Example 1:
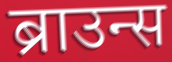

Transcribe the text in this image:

ब्राउन्स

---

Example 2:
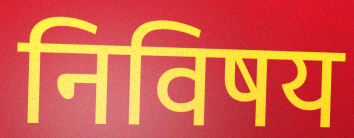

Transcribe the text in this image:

निविषय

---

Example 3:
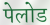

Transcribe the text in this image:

पेलोड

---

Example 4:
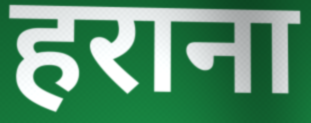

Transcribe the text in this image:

हराना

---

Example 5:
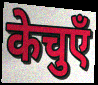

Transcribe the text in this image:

केचुएँ